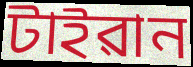
টাইৱান